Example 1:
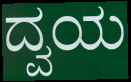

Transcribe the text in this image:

ದ್ವಯ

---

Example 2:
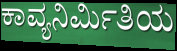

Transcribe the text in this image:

ಕಾವ್ಯನಿರ್ಮಿತಿಯ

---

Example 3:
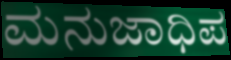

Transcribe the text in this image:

ಮನುಜಾಧಿಪ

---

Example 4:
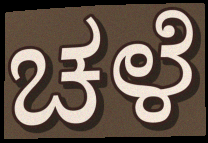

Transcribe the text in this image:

ಚಳೆ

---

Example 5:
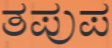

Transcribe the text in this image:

ತಪುಪ